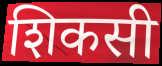
शिकसी